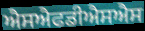
ਐਸਐਫਡੀਐਸਐਸ